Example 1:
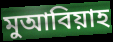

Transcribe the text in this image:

মুআবিয়াহ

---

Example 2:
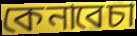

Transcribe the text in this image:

কেনাবেচা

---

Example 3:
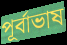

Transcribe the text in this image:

পূর্বাভাষ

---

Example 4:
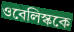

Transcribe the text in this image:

ওবেলিস্ককে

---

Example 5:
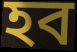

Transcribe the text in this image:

হব